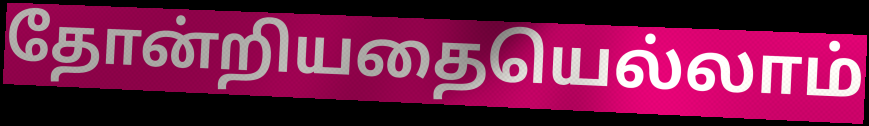
தோன்றியதையெல்லாம்